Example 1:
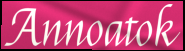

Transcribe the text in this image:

Annoatok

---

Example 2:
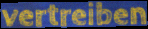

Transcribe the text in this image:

vertreiben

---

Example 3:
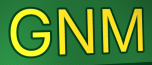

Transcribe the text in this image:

GNM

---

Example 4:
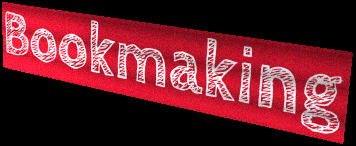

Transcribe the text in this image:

Bookmaking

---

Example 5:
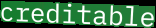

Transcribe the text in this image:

creditable